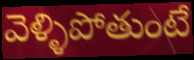
వెళ్ళిపోతుంటే